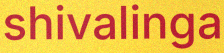
shivalinga